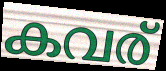
കവര്